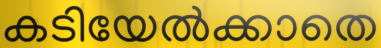
കടിയേൽക്കാതെ